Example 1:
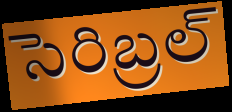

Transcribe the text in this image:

సెరిబ్రల్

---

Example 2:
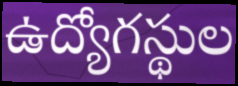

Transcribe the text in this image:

ఉద్యోగస్థుల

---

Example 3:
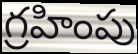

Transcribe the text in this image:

గ్రహింపు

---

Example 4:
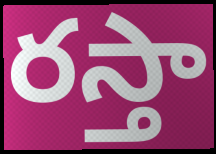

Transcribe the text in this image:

రస్తా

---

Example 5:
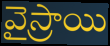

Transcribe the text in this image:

వైస్రాయి